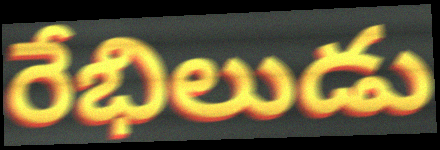
రేభిలుడు